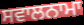
ਸਵਾਲਨਾਮਾ